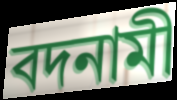
বদনামী